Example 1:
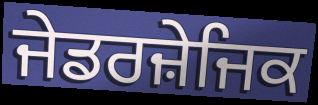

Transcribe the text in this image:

ਜੇਡਰਜ਼ੇਜਿਕ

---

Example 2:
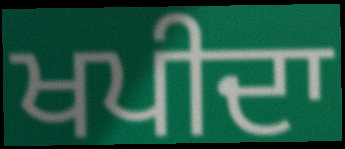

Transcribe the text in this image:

ਖਪੀਦਾ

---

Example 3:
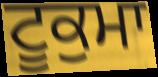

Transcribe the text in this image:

ਟੂਕੁਮਾ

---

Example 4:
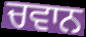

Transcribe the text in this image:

ਚਵਾਨ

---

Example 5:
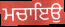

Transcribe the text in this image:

ਮਚਾਇਉ